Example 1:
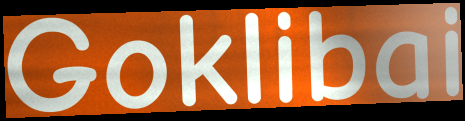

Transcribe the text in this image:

Goklibai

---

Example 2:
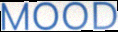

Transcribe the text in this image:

MOOD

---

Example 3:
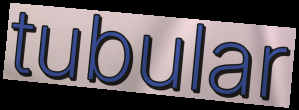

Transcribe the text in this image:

tubular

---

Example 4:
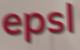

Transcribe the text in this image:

epsl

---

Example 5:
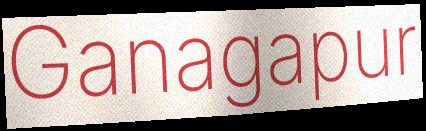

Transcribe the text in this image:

Ganagapur